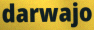
darwajo